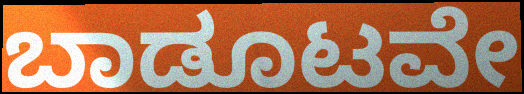
ಬಾಡೂಟವೇ